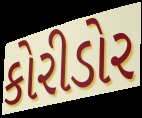
કોરીડોર